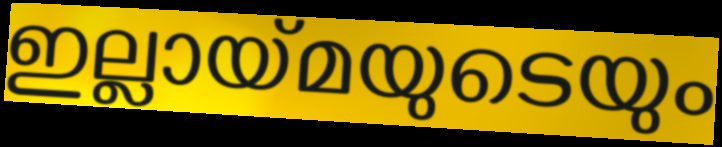
ഇല്ലായ്മയുടെയും